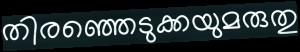
തിരഞ്ഞെടുക്കയുമരുതു